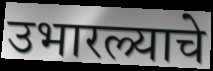
उभारल्याचे